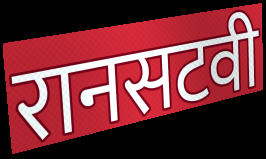
रानसटवी